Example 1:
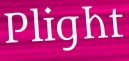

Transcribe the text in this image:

Plight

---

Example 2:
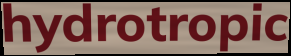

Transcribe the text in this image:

hydrotropic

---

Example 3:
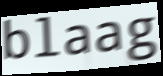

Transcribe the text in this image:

blaag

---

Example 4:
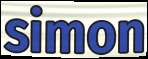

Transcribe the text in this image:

simon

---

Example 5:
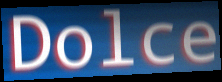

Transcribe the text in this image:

Dolce